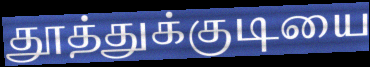
தூத்துக்குடியை